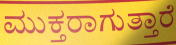
ಮುಕ್ತರಾಗುತ್ತಾರೆ